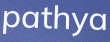
pathya